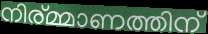
നിര്മ്മാണത്തിന്